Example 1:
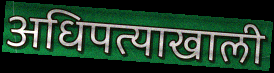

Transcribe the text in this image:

अधिपत्‍याखाली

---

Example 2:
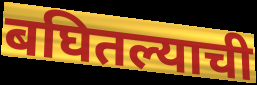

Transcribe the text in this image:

बघितल्याची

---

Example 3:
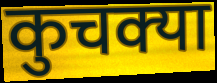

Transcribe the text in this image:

कुचक्या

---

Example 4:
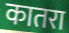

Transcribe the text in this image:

कातरा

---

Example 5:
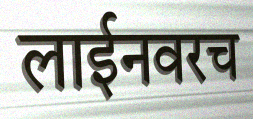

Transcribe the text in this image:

लाईनवरच